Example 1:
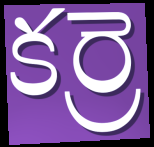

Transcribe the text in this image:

కర్రె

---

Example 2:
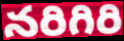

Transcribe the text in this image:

నరిగిరి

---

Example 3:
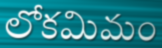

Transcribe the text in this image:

లోకమిమం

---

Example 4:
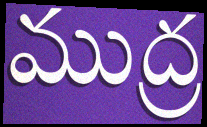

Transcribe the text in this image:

ముద్ర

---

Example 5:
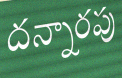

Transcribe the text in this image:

దన్నారపు